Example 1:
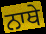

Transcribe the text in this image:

ਨਾਥੇ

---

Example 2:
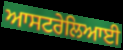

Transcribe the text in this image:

ਆਸਟਰੇਲਿਆਈ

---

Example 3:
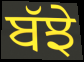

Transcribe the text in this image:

ਬੱਝੇ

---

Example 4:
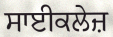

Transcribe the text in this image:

ਸਾਈਕਲੇਜ਼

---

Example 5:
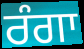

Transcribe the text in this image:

ਰੰਗਾ